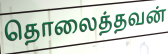
தொலைத்தவன்